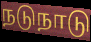
நடுநாடு